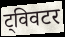
ट्विवटर